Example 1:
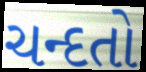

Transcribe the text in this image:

ચન્દતો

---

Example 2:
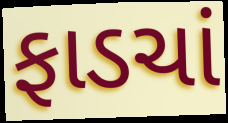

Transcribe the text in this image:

ફાડચાં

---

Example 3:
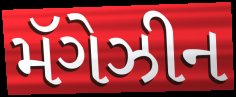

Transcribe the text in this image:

મૅગેઝીન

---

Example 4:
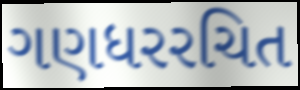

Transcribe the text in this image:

ગણધરરચિત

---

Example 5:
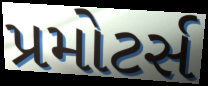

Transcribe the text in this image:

પ્રમોટર્સ